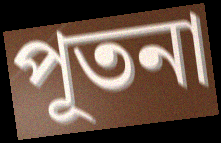
পূতনা